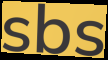
sbs